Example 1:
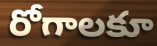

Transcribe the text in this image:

రోగాలకూ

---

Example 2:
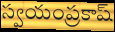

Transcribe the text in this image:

స్వయంప్రకాష్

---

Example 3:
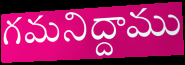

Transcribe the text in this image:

గమనిద్దాము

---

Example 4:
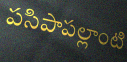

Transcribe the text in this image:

పసిపాపల్లాంటి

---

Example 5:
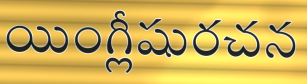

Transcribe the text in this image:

యింగ్లీషురచన